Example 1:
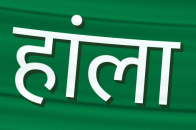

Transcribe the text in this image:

हांला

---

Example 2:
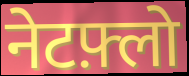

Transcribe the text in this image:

नेटफ़्लो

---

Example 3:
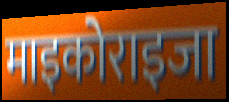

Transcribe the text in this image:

माइकोराइजा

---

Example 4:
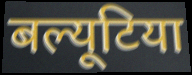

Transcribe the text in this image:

बल्यूटिया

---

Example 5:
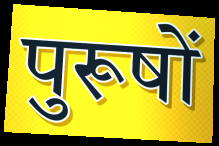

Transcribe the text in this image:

पुरूषों